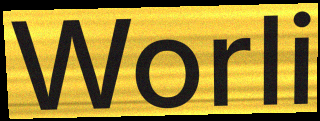
Worli